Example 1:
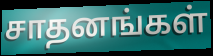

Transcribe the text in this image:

சாதனங்கள்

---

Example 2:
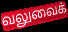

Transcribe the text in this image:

வலுவைக்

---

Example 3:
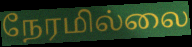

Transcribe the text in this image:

நேரமில்லை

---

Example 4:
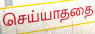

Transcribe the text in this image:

செய்யாததை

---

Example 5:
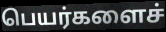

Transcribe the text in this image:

பெயர்களைச்